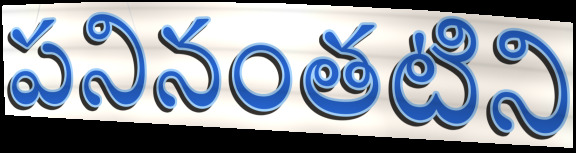
పనినంతటిని